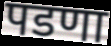
पडणा